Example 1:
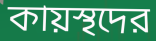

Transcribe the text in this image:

কায়স্থদের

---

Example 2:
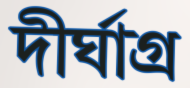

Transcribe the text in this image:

দীর্ঘাগ্র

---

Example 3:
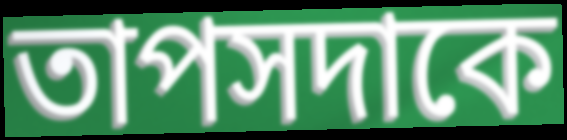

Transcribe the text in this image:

তাপসদাকে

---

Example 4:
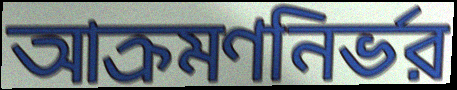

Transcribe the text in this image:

আক্রমণনির্ভর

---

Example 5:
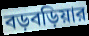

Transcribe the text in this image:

বড়বড়িয়ার